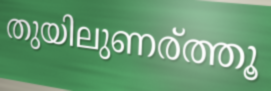
തുയിലുണര്ത്തൂ